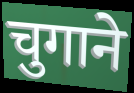
चुगाने